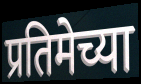
प्रतिमेच्या